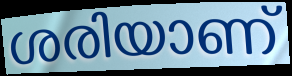
ശരിയാണ്